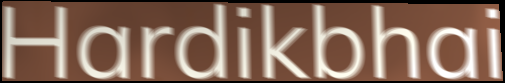
Hardikbhai